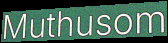
Muthusom